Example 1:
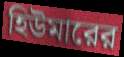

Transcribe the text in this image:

হিউমারের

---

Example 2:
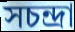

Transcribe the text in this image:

সচন্দ্রা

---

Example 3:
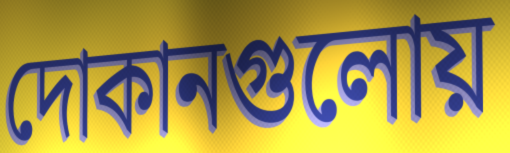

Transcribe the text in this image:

দোকানগুলোয়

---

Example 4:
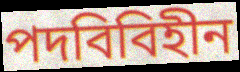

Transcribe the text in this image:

পদবিবিহীন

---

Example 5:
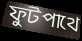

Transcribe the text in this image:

ফুটপাথে